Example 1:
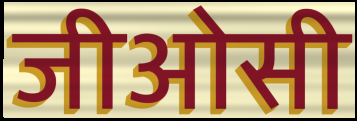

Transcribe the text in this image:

जीओसी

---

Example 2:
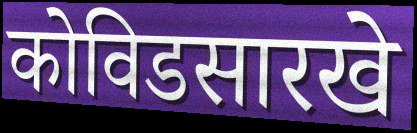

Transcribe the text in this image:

कोविडसारखे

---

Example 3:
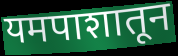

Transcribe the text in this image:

यमपाशातून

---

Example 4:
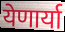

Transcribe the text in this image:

येणार्या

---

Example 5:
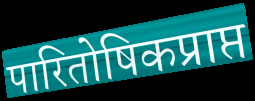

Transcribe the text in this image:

पारितोषिकप्राप्त